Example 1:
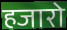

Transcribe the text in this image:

हजारो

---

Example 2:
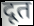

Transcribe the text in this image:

दूत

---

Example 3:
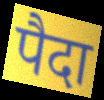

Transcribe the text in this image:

पैदा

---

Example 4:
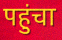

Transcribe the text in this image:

पहुंचा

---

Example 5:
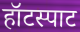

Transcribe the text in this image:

हॉटस्पाट